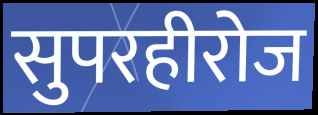
सुपरहीरोज